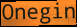
Onegin